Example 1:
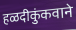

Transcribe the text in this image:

हळदीकुंकवाने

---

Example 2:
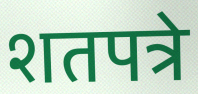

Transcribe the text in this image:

शतपत्रे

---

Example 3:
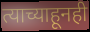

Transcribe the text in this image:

त्याच्याहूनही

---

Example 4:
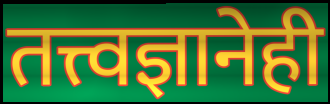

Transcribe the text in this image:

तत्त्वज्ञानेही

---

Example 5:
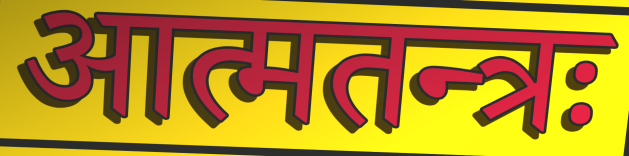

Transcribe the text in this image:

आत्मतन्त्रः